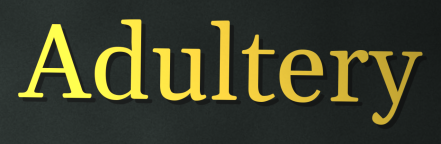
Adultery